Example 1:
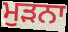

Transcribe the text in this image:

ਮੁਡ਼ਨਾ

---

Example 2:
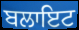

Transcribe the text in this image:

ਬਲਾਇਟ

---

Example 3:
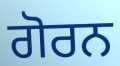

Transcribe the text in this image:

ਗੋਰਨ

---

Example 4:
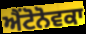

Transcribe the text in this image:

ਐਂਟੋਨੋਵਕਾ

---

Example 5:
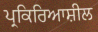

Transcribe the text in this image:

ਪ੍ਰਕਿਰਿਆਸ਼ੀਲ